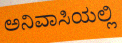
ಅನಿವಾಸಿಯಲ್ಲಿ